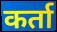
कर्ता